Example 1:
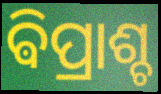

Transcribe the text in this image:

ଵିପ୍ରାଶ୍ଚ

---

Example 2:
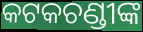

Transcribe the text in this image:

କଟକଚଣ୍ଡୀଙ୍କ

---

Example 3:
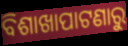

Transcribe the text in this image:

ବିଶାଖାପାଟଣାରୁ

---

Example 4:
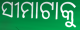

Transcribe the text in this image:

ସୀମାଟାକୁ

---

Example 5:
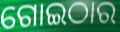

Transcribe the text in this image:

ଗୋଇଠାର